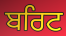
ਬਰਿਟ